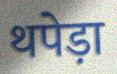
थपेड़ा